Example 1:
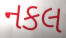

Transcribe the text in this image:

નકલ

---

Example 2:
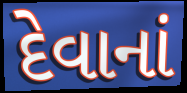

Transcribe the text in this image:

દેવાનાં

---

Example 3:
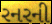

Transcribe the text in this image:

રનરની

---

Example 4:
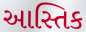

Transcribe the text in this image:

આસ્તિક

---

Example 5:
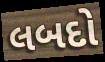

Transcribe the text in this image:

લબદો